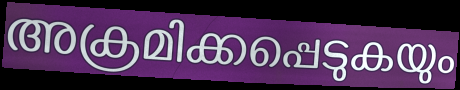
അക്രമിക്കപ്പെടുകയും